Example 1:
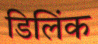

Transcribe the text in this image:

डिलिंक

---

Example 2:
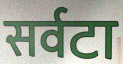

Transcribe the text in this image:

सर्वटा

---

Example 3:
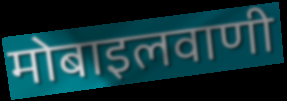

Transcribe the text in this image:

मोबाइलवाणी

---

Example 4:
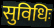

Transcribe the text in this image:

सुविधिः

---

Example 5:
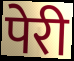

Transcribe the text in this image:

पेरी